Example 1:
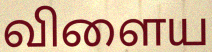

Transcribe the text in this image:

விளைய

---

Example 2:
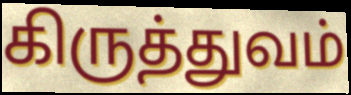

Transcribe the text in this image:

கிருத்துவம்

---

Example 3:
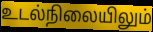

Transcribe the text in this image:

உடல்நிலையிலும்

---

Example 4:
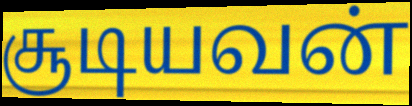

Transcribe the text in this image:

சூடியவன்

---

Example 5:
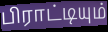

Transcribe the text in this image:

பிராட்டியும்